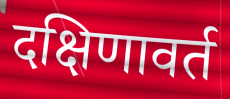
दक्षिणावर्त